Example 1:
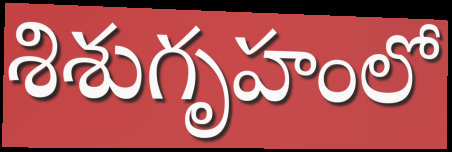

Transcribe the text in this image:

శిశుగృహంలో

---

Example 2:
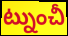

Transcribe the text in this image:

ట్నుంచీ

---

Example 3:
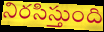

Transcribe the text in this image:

నిరసిస్తుంది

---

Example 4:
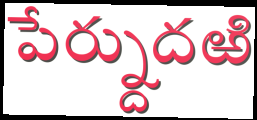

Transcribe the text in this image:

పేర్న్దుదఱి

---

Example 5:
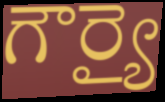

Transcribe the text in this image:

గౌర్యై